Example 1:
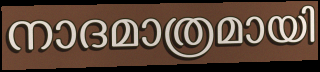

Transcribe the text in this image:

നാദമാത്രമായി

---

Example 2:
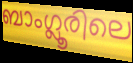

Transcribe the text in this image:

ബാംഗ്ലൂരിലെ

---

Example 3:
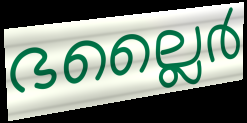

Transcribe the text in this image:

ഭല്ലൈർ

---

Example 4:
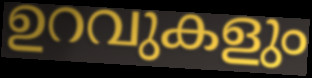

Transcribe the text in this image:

ഉറവുകളും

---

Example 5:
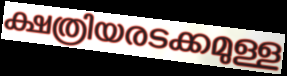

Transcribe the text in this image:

ക്ഷത്രിയരടക്കമുള്ള